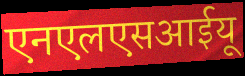
एनएलएसआईयू